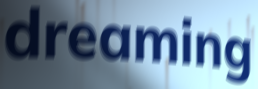
dreaming